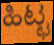
ಹಿಟ್ಟ